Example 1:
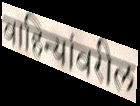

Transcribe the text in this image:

वाहिन्यांवरील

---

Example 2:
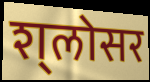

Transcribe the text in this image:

श्लोसर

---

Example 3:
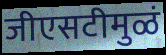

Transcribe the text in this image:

जीएसटीमुळं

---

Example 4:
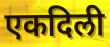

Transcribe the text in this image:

एकदिली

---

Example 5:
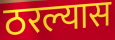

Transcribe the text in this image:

ठरल्यास